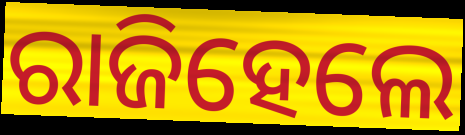
ରାଜିହେଲେ